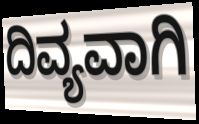
ದಿವ್ಯವಾಗಿ